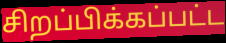
சிறப்பிக்கப்பட்ட